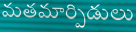
మతమార్పిడులు